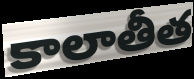
కాలాతీత